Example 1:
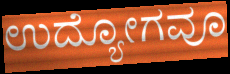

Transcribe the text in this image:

ಉದ್ಯೋಗವೂ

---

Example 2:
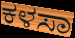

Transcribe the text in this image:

ಕಳಸಾ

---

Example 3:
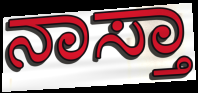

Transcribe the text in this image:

ನಾಸ್ತಾ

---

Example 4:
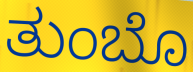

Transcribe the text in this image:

ತುಂಬೊ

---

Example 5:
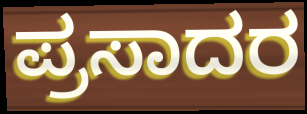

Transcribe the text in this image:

ಪ್ರಸಾದರ